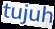
tujuh